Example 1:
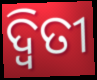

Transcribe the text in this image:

ଦ୍ୱିତୀ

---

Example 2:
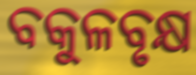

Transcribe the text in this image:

ବକୁଳବୃକ୍ଷ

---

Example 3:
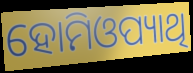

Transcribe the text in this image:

ହୋମିଓପ୍ୟାଥି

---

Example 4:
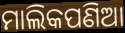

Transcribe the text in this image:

ମାଲିକପଣିଆ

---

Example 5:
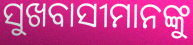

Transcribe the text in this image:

ସୁଖବାସୀମାନଙ୍କୁ